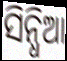
ସିନ୍ଧିଆ